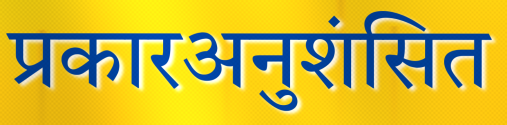
प्रकारअनुशंसित